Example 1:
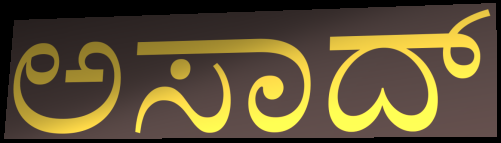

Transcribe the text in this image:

ಅಸಾದ್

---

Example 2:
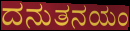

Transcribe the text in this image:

ದನುತನಯಂ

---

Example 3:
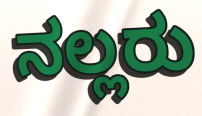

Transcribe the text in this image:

ನಲ್ಲರು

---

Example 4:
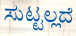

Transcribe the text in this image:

ಸುಟ್ಟಲ್ಲದೆ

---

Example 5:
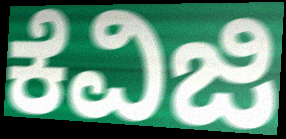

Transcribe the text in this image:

ಕೆವಿಜಿ